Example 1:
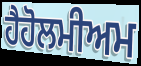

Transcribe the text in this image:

ਹੈਹੋਲਮੀਅਮ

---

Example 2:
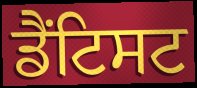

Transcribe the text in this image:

ਡੈਂਟਿਸਟ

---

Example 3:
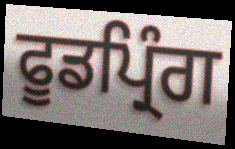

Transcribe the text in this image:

ਫੂਡਪ੍ਰਿੰਗ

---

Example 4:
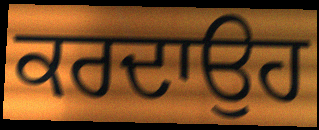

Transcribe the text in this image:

ਕਰਦਾਉਹ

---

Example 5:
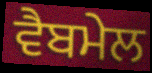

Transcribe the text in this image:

ਵੈਬਮੇਲ